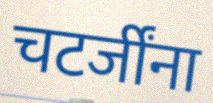
चटर्जींना